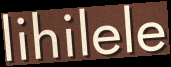
lihilele